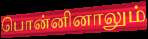
பொன்னினாலும்